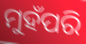
ମୁହଁପରି